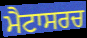
ਮੈਟਾਸਰਚ